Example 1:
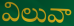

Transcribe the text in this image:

విలువా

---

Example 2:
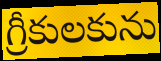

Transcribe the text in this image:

గ్రీకులకును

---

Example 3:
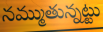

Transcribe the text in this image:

నమ్ముతున్నట్టు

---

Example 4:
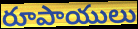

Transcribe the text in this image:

రూపాయులు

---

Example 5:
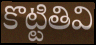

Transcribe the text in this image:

కొట్టితివి